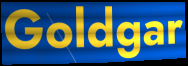
Goldgar